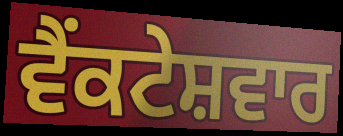
ਵੈਂਕਟੇਸ਼ਵਾਰ